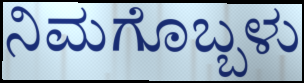
ನಿಮಗೊಬ್ಬಳು